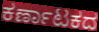
ಕರ್ಣಾಟಕದ